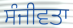
ਸੰਜੀਵਤਾ